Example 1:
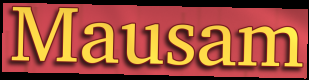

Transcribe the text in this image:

Mausam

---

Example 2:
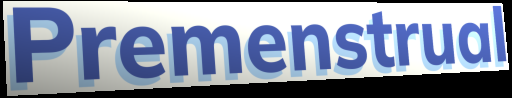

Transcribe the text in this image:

Premenstrual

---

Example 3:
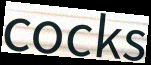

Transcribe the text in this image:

cocks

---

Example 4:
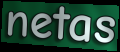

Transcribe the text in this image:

netas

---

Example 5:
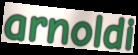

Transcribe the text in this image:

arnoldi